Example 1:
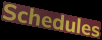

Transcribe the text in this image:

Schedules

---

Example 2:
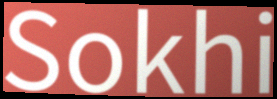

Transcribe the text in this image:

Sokhi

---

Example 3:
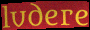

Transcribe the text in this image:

ludere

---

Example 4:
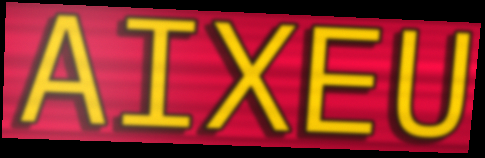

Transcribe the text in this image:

AIXEU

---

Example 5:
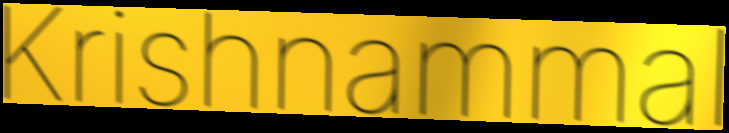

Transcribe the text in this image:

Krishnammal